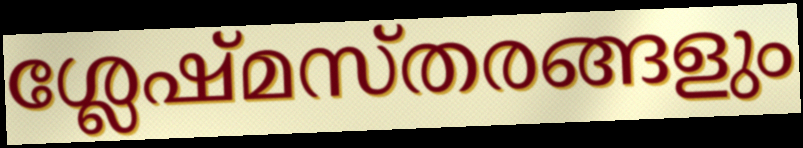
ശ്ലേഷ്മസ്തരങ്ങളും